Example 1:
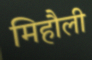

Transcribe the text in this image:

मिहौली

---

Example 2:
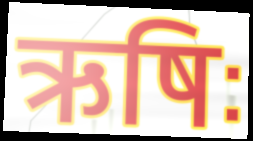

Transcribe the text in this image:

ऋषिः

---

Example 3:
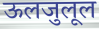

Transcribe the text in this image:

ऊलजुलूल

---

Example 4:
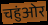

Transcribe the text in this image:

चहुंओर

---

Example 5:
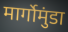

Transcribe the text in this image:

मार्गोमुंडा